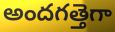
అందగత్తెగా